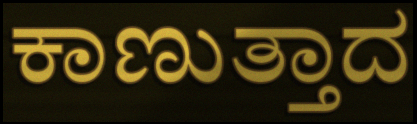
ಕಾಣುತ್ತಾದ